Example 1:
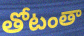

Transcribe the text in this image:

తోటంతా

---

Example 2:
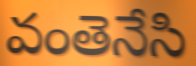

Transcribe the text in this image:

వంతెనేసి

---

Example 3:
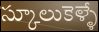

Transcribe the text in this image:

స్కూలుకెళ్ళే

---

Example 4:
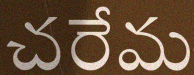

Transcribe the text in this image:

చరేమ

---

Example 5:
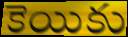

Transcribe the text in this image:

కెయికు